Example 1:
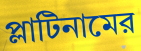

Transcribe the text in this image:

প্লাটিনামের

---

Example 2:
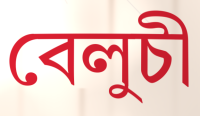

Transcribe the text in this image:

বেলুচী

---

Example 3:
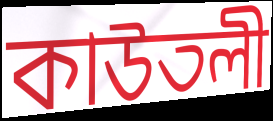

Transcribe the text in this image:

কাউতলী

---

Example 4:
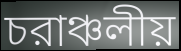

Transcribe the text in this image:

চরাঞ্চলীয়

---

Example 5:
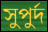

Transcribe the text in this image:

সুপুর্দ